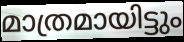
മാത്രമായിട്ടും